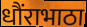
धौंराभाठा